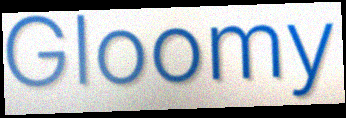
Gloomy